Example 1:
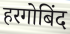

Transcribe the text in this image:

हरगोबिंद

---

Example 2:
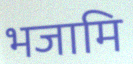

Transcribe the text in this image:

भजामि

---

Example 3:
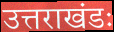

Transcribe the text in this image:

उत्तराखंडः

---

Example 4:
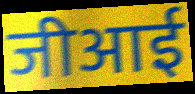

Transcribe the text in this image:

जीआई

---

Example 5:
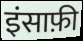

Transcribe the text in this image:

इंसाफ़ी